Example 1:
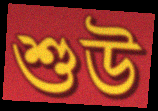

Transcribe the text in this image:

শুউ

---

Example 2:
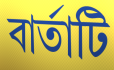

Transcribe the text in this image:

বার্তাটি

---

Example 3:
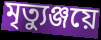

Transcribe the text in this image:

মৃত্যুঞ্জয়ে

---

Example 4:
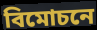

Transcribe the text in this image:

বিমোচনে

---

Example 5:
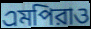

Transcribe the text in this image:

এমপিরাও